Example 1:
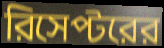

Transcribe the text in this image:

রিসেপ্টরের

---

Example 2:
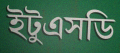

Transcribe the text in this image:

ইটুএসডি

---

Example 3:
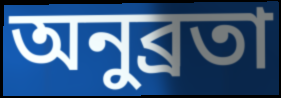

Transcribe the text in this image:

অনুব্রতা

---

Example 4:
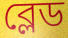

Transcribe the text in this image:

ব্লেড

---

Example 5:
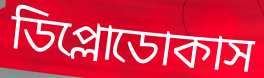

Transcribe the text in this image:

ডিপ্লোডোকাস